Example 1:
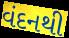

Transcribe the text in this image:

વંદનથી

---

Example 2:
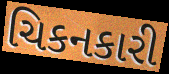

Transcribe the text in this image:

ચિકનકારી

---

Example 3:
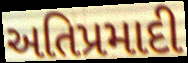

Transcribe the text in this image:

અતિપ્રમાદી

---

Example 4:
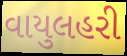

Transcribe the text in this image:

વાયુલહરી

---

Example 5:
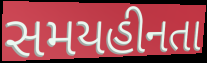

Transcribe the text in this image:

સમયહીનતા